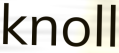
knoll